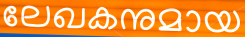
ലേഖകനുമായ